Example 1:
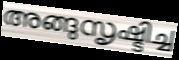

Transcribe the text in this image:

അങ്ങുസൃഷ്ടിച്ച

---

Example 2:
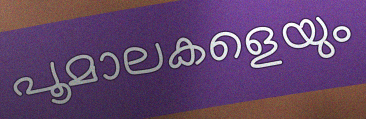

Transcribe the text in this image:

പൂമാലകളെയും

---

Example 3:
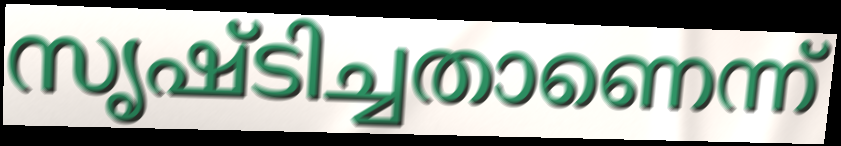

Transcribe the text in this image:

സൃഷ്ടിച്ചതാണെന്ന്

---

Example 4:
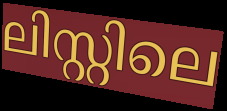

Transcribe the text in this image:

ലിസ്റ്റിലെ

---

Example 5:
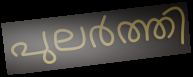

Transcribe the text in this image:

പുലർത്തി